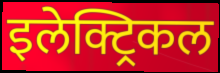
इलेक्ट्रिकल